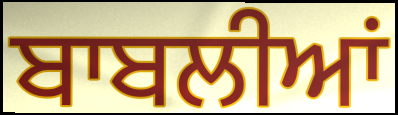
ਬਾਬਲੀਆਂ